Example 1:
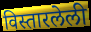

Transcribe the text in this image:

विस्तारलेली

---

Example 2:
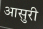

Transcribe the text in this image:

आसुरी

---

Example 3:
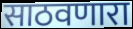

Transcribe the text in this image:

साठवणारा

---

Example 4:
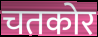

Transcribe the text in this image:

चतकोर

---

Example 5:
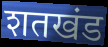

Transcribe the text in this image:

शतखंड